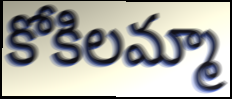
కోకిలమ్మా